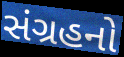
સંગ્રહનો